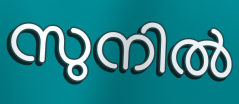
സുനിൽ